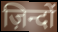
ज़िन्दों